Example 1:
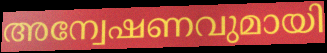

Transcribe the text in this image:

അന്വേഷണവുമായി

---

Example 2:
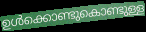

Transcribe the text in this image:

ഉൾക്കൊണ്ടുകൊണ്ടുള്ള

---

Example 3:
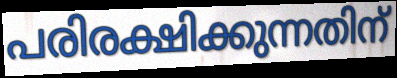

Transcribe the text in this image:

പരിരക്ഷിക്കുന്നതിന്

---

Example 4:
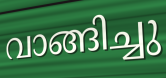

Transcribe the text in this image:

വാങ്ങിച്ചു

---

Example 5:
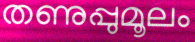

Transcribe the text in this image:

തണുപ്പുമൂലം